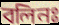
বলিনঃ